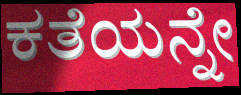
ಕತೆಯನ್ನೇ